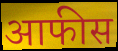
आफीस